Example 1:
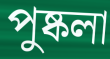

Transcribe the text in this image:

পুষ্কলা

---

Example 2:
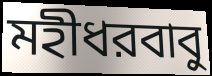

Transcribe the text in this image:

মহীধরবাবু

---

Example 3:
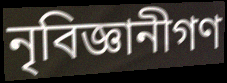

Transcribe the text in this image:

নৃবিজ্ঞানীগণ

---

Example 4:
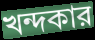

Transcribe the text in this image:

খন্দকার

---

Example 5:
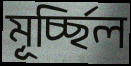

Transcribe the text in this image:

মূর্চ্ছিল